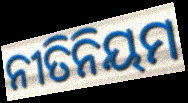
ନୀତିନିୟମ